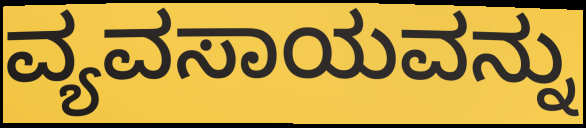
ವ್ಯವಸಾಯವನ್ನು